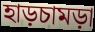
হাড়চামড়া